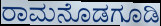
ರಾಮನೊಡಗೂಡಿ